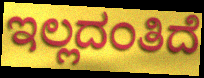
ಇಲ್ಲದಂತಿದೆ